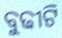
ବୁଢୀଟି